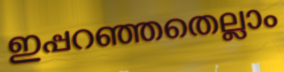
ഇപ്പറഞ്ഞതെല്ലാം